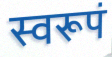
स्वरूपं